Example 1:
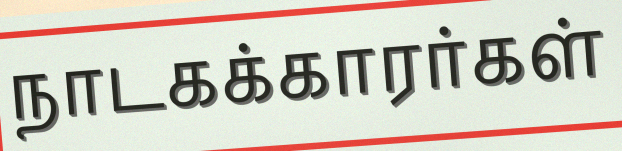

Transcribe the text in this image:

நாடகக்காரர்கள்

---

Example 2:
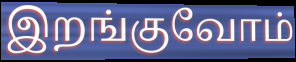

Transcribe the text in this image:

இறங்குவோம்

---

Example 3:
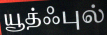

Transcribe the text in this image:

யூத்ஃபுல்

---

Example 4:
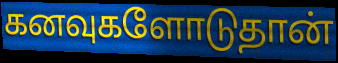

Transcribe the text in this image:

கனவுகளோடுதான்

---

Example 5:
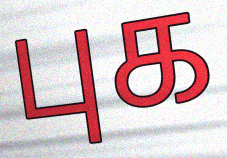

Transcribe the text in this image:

புக